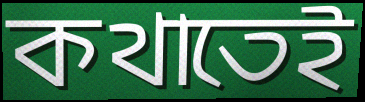
কথাতেই